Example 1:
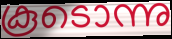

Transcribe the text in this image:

കൂടൊന്നു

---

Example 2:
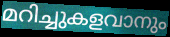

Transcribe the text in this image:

മറിച്ചുകളവാനും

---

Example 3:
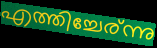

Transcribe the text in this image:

എത്തിച്ചേര്ന്നു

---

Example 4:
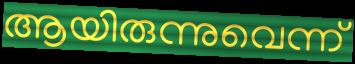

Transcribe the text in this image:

ആയിരുന്നുവെന്ന്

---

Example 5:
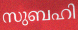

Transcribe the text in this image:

സുബഹി